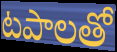
టపాలతో